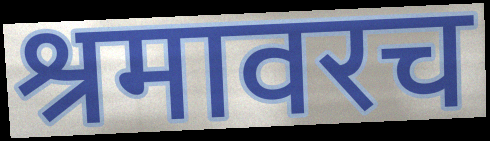
श्रमावरच